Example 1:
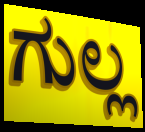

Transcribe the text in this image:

ಗುಲ್ಲ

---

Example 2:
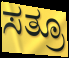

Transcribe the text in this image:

ಸತ್ರೂ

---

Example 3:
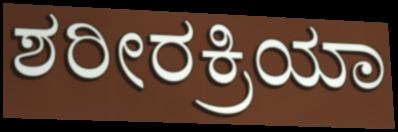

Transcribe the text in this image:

ಶರೀರಕ್ರಿಯಾ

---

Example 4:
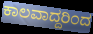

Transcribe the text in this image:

ಕಾಲವಾದ್ದರಿಂದ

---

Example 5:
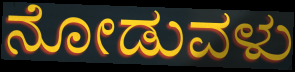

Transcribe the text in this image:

ನೋಡುವಳು